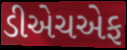
ડીએચએફ